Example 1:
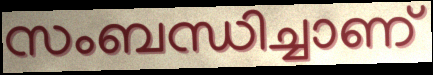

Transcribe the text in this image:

സംബന്ധിച്ചാണ്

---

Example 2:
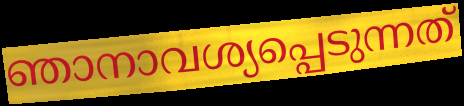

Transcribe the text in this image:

ഞാനാവശ്യപ്പെടുന്നത്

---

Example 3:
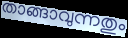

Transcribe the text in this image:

താങ്ങാവുന്നതും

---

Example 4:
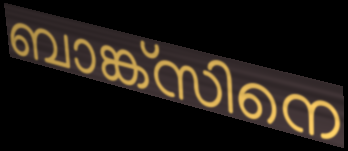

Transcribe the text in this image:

ബാങ്ക്സിനെ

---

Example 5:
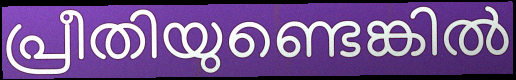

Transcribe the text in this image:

പ്രീതിയുണ്ടെങ്കിൽ